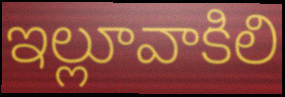
ఇల్లూవాకిలి